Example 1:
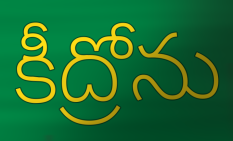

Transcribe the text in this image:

కీద్రోను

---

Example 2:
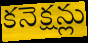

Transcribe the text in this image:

కనెక్షన్లు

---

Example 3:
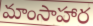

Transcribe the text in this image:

మాంసాహార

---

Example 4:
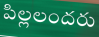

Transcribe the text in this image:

పిల్లలందరు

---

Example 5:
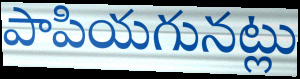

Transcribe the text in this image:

పాపియగునట్లు